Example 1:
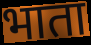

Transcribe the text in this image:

भाता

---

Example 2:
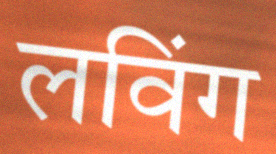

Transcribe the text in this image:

लविंग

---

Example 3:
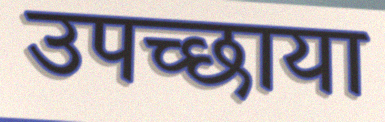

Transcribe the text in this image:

उपच्छाया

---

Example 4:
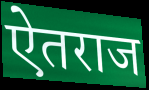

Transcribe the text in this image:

ऐतराज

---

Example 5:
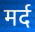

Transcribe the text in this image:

मर्द